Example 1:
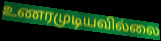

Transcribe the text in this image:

உணரமுடியவில்லை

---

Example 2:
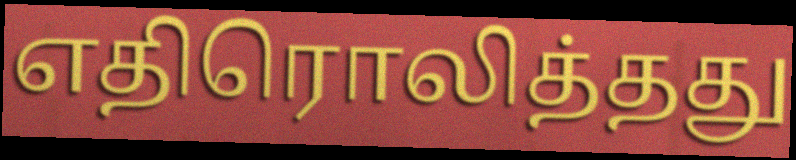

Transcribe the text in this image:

எதிரொலித்தது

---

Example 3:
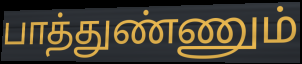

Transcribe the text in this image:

பாத்துண்ணும்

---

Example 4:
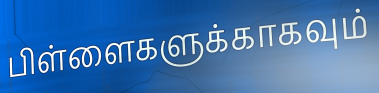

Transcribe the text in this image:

பிள்ளைகளுக்காகவும்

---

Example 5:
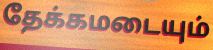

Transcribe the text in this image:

தேக்கமடையும்